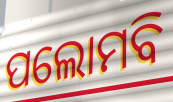
ପଲୋମବି